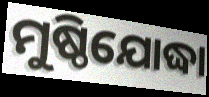
ମୁଷ୍ଠିଯୋଦ୍ଧା